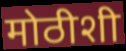
मोठीशी